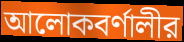
আলোকবর্ণালীর